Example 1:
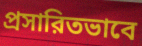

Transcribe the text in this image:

প্রসারিতভাবে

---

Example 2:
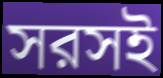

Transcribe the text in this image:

সরসই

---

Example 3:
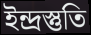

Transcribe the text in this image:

ইন্দ্রস্তুতি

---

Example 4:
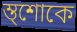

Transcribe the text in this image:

ম্ত্শোকে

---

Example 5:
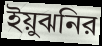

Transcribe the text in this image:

ইয়ুঝনির